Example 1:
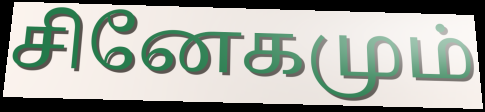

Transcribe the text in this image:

சினேகமும்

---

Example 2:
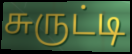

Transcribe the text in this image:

சுருட்டி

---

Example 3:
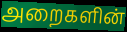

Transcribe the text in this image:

அறைகளின்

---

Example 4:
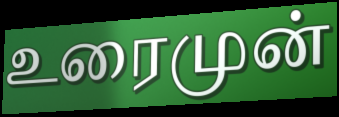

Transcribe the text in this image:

உரைமுன்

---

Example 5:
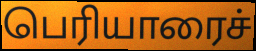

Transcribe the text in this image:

பெரியாரைச்